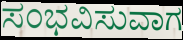
ಸಂಭವಿಸುವಾಗ